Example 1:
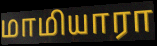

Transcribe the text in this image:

மாமியாரா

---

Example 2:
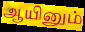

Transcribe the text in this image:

ஆயினும்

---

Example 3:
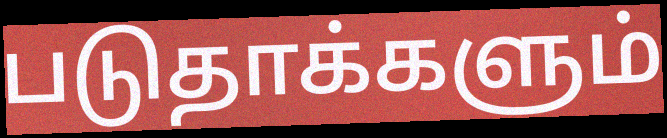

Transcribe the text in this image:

படுதாக்களும்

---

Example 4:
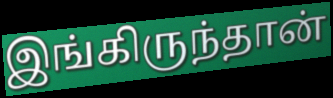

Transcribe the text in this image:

இங்கிருந்தான்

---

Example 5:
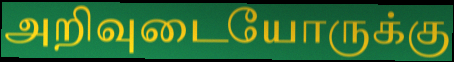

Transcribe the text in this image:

அறிவுடையோருக்கு